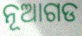
ନୂଆଗଡ